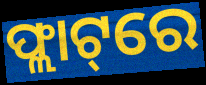
ଫ୍ଲାଟ୍‌ରେ